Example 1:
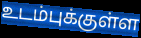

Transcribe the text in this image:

உடம்புக்குள்ள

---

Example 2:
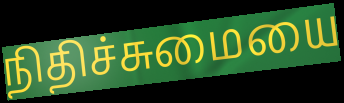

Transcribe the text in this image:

நிதிச்சுமையை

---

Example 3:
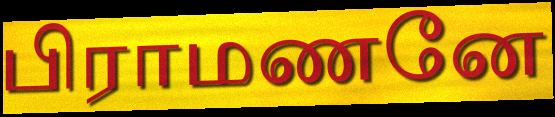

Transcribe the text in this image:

பிராமணனே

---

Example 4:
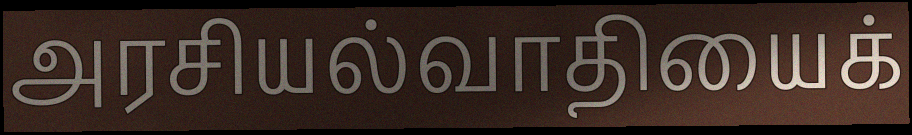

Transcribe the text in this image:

அரசியல்வாதியைக்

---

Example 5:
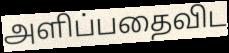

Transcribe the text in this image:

அளிப்பதைவிட